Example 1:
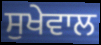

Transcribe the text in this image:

ਸੁਖੇਵਾਲ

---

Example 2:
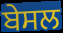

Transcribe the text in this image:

ਬੇਸਲ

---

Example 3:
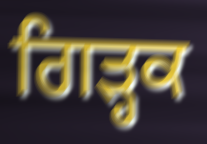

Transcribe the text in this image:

ਗਿੜ੍ਹਕ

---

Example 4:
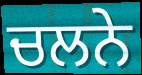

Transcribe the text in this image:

ਚਲਨੇ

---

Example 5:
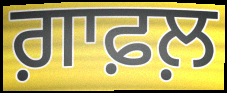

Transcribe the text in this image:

ਗ਼ਾਫ਼ਲ਼